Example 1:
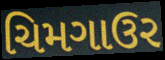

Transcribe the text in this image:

ચિમગાઉર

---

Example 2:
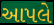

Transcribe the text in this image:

આપલે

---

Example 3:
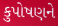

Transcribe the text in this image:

કુપોષણને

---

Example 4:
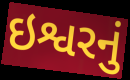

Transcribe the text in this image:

ઇશ્વરનું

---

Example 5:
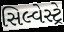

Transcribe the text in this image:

સિલ્વેસ્ટ્રે